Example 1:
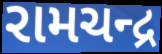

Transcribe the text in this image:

રામચન્દ્ર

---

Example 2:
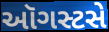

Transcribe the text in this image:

ઑગસ્ટસે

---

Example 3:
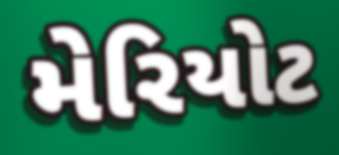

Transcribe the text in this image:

મેરિયોટ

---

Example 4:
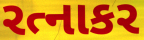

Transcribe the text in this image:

રત્નાકર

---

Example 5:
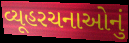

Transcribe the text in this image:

વ્યૂહરચનાઓનું